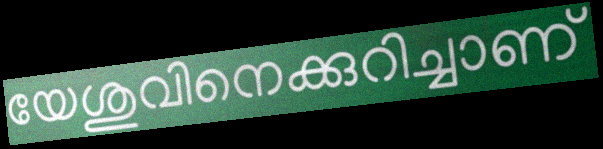
യേശുവിനെക്കുറിച്ചാണ്